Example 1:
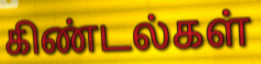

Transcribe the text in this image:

கிண்டல்கள்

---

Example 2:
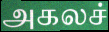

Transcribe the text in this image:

அகலச்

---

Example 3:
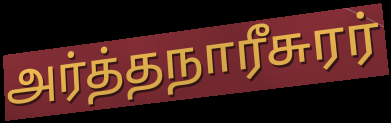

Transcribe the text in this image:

அர்த்தநாரீசுரர்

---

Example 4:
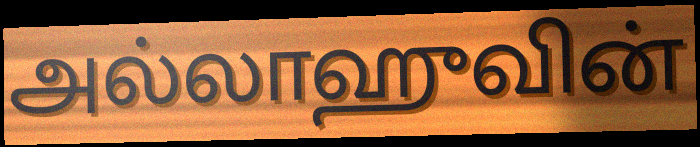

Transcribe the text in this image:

அல்லாஹுவின்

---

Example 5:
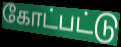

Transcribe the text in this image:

கோட்பட்டு